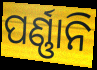
ପର୍ଣ୍ଣାନି